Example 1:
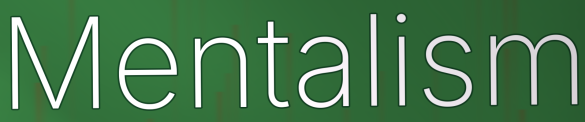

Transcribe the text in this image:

Mentalism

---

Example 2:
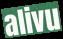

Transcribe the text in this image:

alivu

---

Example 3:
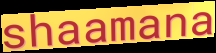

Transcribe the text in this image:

shaamana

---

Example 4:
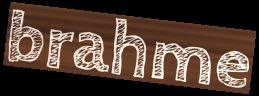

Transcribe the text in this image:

brahme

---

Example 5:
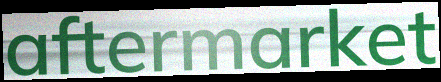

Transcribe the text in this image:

aftermarket